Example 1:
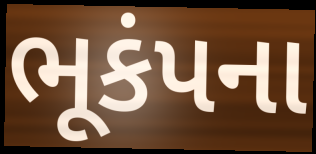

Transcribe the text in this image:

ભૂકંપના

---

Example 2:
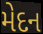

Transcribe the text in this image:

મેદન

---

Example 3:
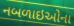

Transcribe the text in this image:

નબળાઇઓના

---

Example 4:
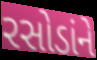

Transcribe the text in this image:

રસોડાંને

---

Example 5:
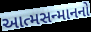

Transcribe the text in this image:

આત્મસન્માનનો